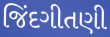
જિંદગીતણી